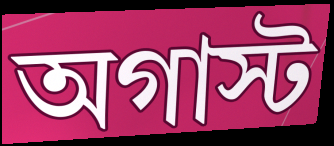
অগাস্ট